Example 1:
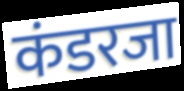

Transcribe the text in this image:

कंडरजा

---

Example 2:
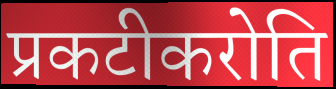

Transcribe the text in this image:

प्रकटीकरोति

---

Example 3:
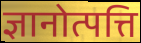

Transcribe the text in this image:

ज्ञानोत्पत्ति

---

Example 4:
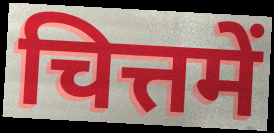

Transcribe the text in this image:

चित्तमें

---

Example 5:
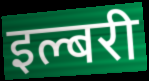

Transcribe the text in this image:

इल्बरी